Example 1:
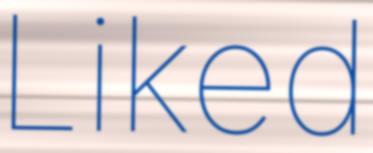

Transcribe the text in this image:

Liked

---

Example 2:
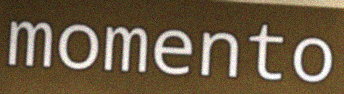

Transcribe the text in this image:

momento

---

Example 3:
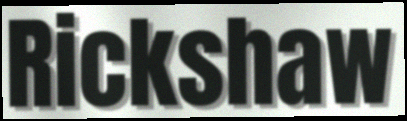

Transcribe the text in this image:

Rickshaw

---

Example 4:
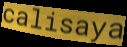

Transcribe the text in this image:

calisaya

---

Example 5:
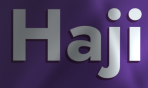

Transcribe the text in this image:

Haji